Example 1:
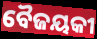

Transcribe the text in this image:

ବୈଜୟକୀ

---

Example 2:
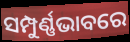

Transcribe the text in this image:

ସମ୍ପୁର୍ଣ୍ଣଭାବରେ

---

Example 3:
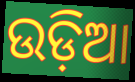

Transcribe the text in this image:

ଉଡ଼ିଆ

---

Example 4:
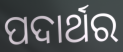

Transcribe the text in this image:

ପଦାର୍ଥର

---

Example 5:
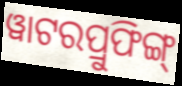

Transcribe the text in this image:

ୱାଟରପ୍ରୁଫିଙ୍ଗ୍